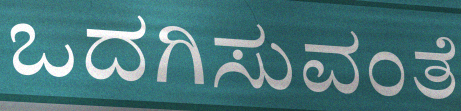
ಒದಗಿಸುವಂತೆ